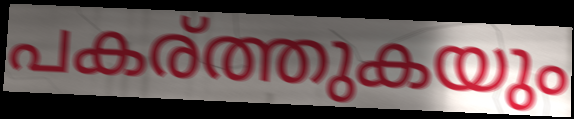
പകര്ത്തുകയും